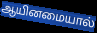
ஆயினமையால்